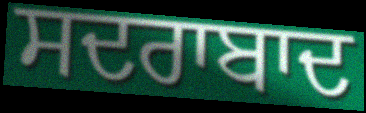
ਸਦਰਾਬਾਦ